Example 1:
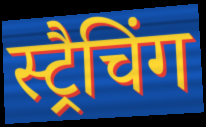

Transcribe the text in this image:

स्ट्रैचिंग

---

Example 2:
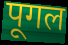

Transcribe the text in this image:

पूगल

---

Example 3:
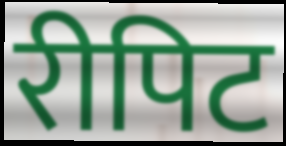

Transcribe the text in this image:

रीपिट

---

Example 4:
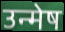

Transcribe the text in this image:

उन्मेष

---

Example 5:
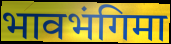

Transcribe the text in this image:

भावभंगिमा